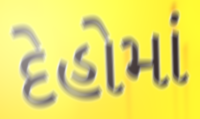
દેહોમાં